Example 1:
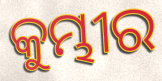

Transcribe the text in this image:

କୁମ୍ଭୀର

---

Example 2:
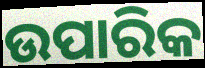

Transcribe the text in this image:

ଉପାରିକ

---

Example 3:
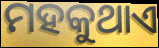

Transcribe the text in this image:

ମହକୁଥାଏ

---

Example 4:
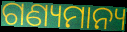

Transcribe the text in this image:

ଗଣ୍ୟମାନ୍ୟ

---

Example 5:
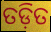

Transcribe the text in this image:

ତଡ଼ିତ